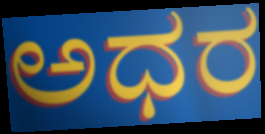
ಅಧರ